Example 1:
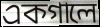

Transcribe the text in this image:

একগালে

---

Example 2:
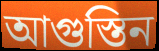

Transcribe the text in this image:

আগুস্তিন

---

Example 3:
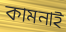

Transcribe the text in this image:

কামনাই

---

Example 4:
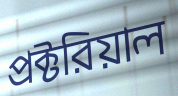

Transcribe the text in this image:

প্রক্টরিয়াল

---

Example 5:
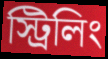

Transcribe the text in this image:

স্ট্রিলিং